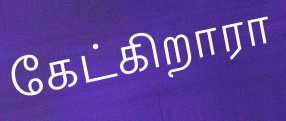
கேட்கிறாரா